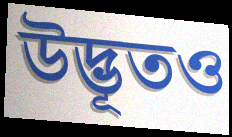
উদ্ভূতও